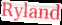
Ryland